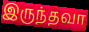
இருந்தவா